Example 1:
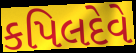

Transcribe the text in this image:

કપિલદેવે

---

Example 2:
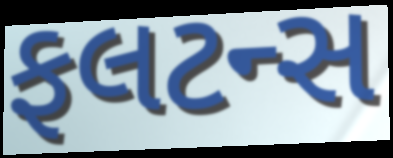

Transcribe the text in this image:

ફલટન્સ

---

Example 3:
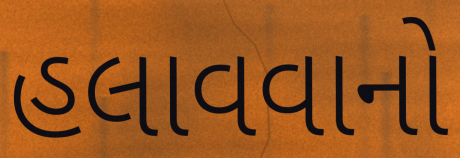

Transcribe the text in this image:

હલાવવાનો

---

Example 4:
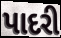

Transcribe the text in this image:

પાદરી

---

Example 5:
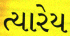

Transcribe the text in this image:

ત્યારેય